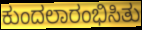
ಕುಂದಲಾರಂಭಿಸಿತು